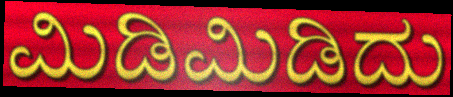
ಮಿಡಿಮಿಡಿದು